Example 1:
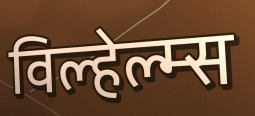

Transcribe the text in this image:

विल्हेल्म्स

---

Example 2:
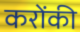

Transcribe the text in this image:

करोंकी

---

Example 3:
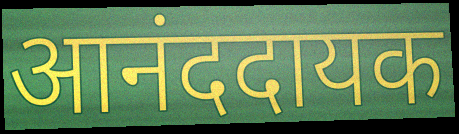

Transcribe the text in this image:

आनंददायक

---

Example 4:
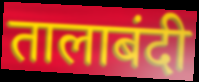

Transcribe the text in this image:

तालाबंदी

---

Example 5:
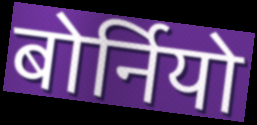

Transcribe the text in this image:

बोर्नियो